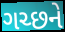
ગચ્છને